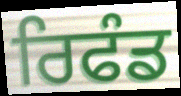
ਰਿਫੰਡ